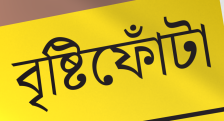
বৃষ্টিফোঁটা